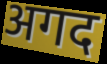
अगद